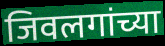
जिवलगांच्या